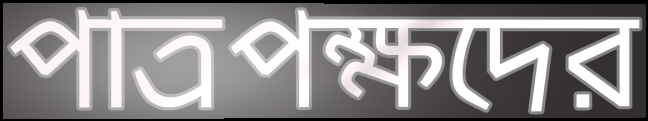
পাত্রপক্ষদের